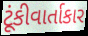
ટૂંકીવાર્તાકાર